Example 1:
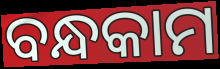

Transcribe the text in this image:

ବନ୍ଧକାମ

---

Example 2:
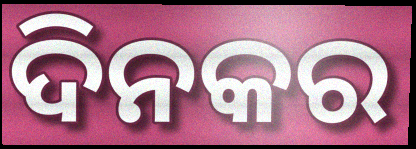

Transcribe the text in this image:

ଦିନକର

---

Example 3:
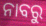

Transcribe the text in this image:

ନାବରୁ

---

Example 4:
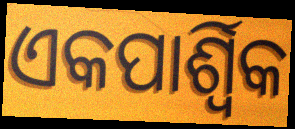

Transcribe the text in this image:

ଏକପାର୍ଶ୍ୱିକ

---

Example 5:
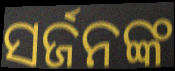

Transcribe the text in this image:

ସର୍ଜନଙ୍କ